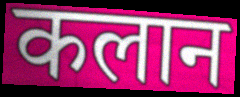
कलान